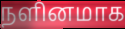
நளினமாக